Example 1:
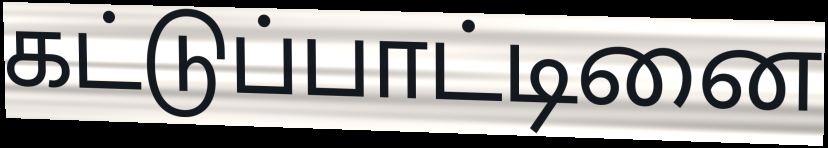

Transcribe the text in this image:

கட்டுப்பாட்டினை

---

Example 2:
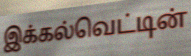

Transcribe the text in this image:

இக்கல்வெட்டின்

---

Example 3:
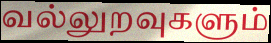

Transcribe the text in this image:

வல்லுறவுகளும்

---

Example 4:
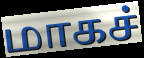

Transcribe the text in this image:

மாகச்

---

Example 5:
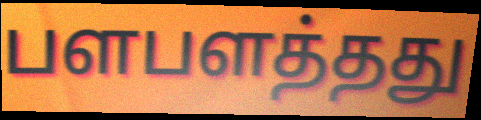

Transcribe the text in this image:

பளபளத்தது